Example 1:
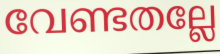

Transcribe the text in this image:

വേണ്ടതല്ലേ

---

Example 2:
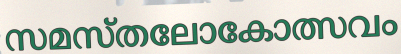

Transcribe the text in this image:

സമസ്തലോകോത്സവം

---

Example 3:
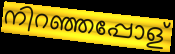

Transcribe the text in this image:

നിറഞ്ഞപ്പോള്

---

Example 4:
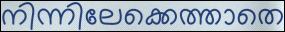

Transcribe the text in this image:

നിന്നിലേക്കെത്താതെ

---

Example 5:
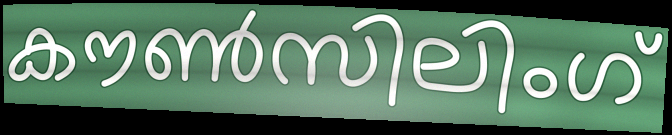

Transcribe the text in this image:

കൗൺസിലിംഗ്